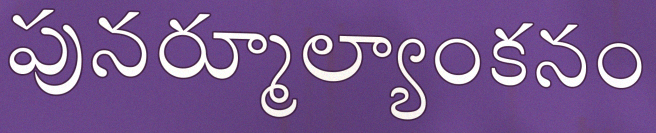
పునర్మూల్యాంకనం